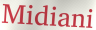
Midiani